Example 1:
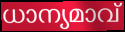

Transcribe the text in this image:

ധാന്യമാവ്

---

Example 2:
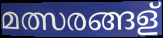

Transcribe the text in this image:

മത്സരങ്ങള്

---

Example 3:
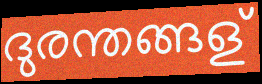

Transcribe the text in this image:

ദുരന്തങ്ങള്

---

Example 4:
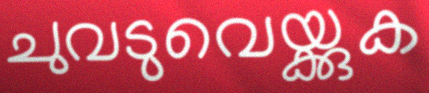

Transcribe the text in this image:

ചുവടുവെയ്ക്കുക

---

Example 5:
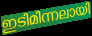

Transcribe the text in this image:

ഇടിമിന്നലായി